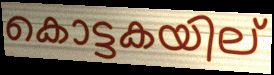
കൊട്ടകയില്